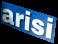
arisi